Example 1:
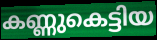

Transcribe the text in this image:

കണ്ണുകെട്ടിയ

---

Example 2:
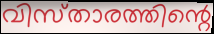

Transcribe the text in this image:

വിസ്‌താരത്തിന്റെ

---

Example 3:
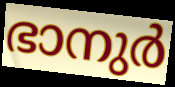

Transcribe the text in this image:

ഭാനുർ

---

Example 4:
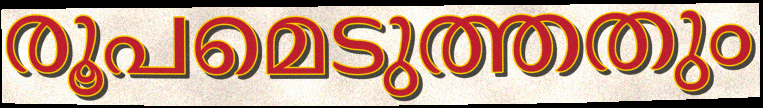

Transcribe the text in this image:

രൂപമെടുത്തതും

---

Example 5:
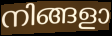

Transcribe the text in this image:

നിങ്ങളാ